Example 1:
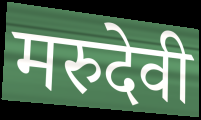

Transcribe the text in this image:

मरुदेवी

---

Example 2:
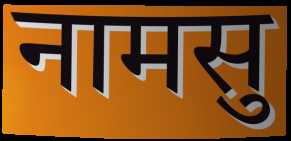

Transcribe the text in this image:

नामसु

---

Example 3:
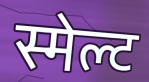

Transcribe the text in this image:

स्मेल्ट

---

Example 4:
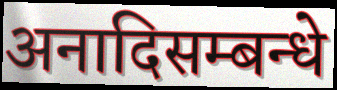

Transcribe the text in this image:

अनादिसम्बन्धे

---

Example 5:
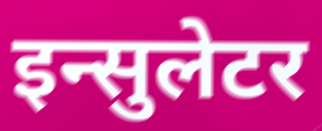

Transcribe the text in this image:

इन्सुलेटर